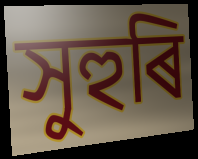
সুহুৰি